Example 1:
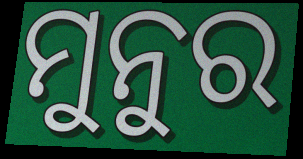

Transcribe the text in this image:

ମୁନୁର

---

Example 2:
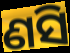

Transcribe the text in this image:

ଣସି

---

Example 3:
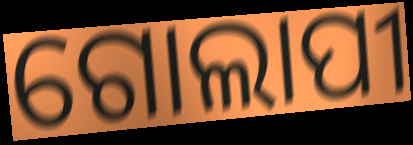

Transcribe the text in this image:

ଗୋଲାପୀ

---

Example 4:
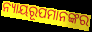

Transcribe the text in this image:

ନ୍ୟାୟରୂପମାନଙ୍କର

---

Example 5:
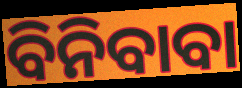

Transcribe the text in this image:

ବିନିବାବା